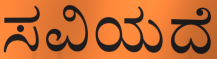
ಸವಿಯದೆ